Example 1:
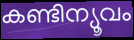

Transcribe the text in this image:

കണ്ടിന്യൂവം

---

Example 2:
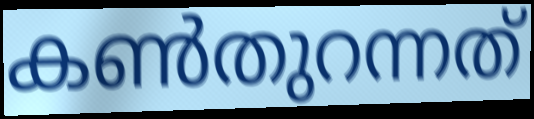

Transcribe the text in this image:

കൺതുറന്നത്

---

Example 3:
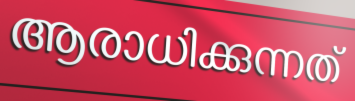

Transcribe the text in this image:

ആരാധിക്കുന്നത്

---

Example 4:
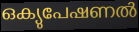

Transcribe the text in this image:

ഒക്യുപേഷണൽ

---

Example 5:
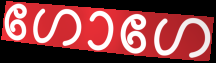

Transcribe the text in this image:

ഗോഗേ